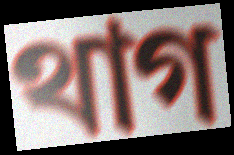
থাগ